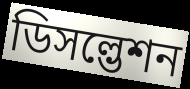
ডিসল্ভেশন